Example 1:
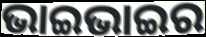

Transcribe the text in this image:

ଭାଇଭାଇର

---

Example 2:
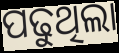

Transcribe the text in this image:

ପଢୁଥିଲା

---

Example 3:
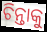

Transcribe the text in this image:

ଚିନ୍ତାକୁ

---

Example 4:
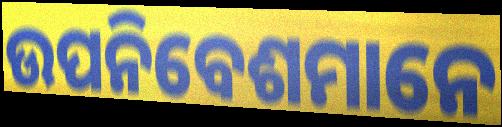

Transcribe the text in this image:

ଉପନିବେଶମାନେ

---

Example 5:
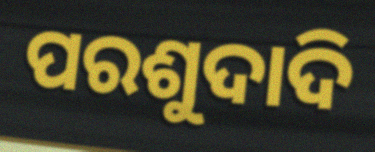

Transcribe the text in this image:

ପରଶୁଦାଦି